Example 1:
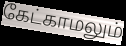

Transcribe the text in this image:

கேட்காமலும்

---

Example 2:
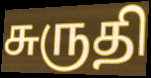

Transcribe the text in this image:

சுருதி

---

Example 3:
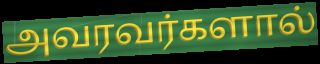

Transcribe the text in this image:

அவரவர்களால்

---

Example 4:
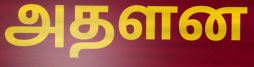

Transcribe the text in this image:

அதளன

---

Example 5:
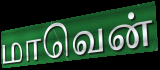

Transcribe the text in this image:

மாவென்